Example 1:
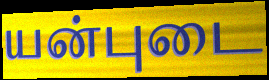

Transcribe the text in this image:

யன்புடை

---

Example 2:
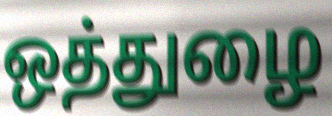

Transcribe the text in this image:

ஒத்துழை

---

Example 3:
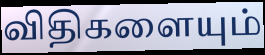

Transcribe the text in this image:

விதிகளையும்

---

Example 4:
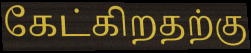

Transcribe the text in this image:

கேட்கிறதற்கு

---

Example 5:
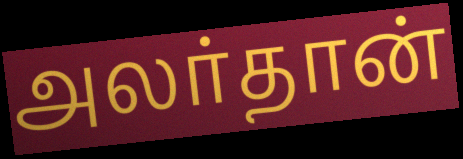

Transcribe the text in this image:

அலர்தான்